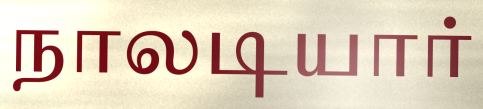
நாலடியார்